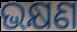
ଭକ୍ଷଣ